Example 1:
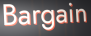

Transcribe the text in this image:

Bargain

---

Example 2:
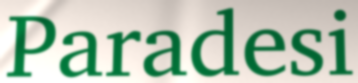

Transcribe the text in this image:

Paradesi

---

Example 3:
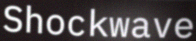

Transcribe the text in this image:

Shockwave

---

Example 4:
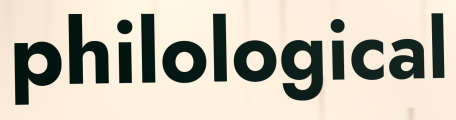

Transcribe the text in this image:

philological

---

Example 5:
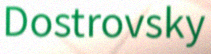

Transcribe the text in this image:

Dostrovsky